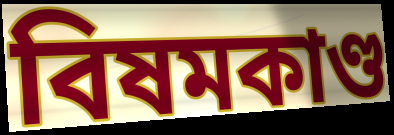
বিষমকাণ্ড